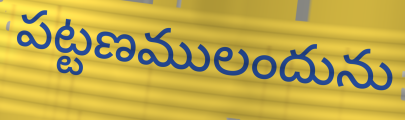
పట్టణములందును